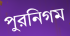
পুরনিগম